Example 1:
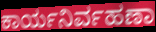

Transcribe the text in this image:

ಕಾರ್ಯನಿರ್ವಹಣಾ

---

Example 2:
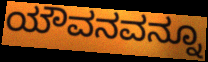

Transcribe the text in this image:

ಯೌವನವನ್ನೂ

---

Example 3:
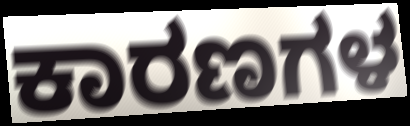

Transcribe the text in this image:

ಕಾರಣಗಳ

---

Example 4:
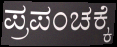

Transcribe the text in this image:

ಪ್ರಪಂಚಕ್ಕೆ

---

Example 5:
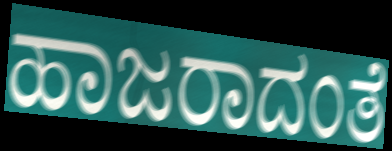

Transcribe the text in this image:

ಹಾಜರಾದಂತೆ